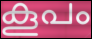
കൂപം